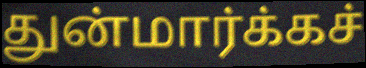
துன்மார்க்கச்